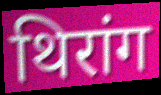
थिरांग